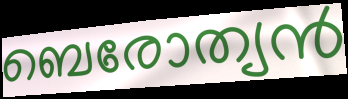
ബെരോത്യൻ